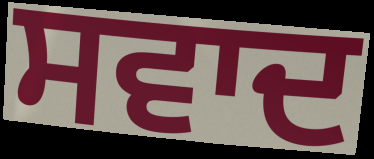
ਸਵਾਦ